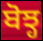
ਬੋਝ੍ਹ